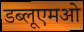
डब्लूएमओ